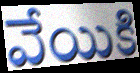
వేయికి